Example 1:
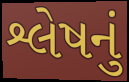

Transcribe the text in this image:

શ્લેષનું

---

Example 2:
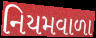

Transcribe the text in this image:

નિયમવાળા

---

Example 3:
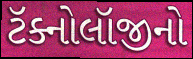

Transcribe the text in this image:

ટૅક્નોલૉજીનો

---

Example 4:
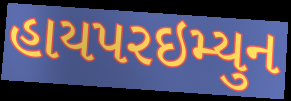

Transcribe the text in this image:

હાયપરઇમ્યુન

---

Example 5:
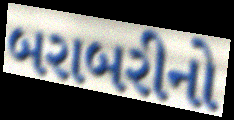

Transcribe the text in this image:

બરાબરીનો